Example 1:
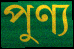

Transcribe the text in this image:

পুণ্য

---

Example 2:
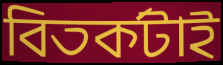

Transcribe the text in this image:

বিতর্কটাই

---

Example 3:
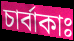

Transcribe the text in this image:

চার্বাকাঃ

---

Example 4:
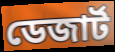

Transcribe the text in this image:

ডেজার্ট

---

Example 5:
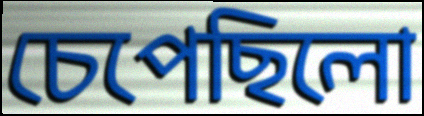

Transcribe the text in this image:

চেপেছিলো